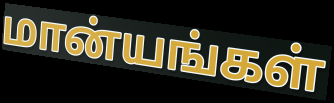
மான்யங்கள்